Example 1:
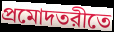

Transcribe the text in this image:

প্রমোদতরীতে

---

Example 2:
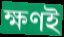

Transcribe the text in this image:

ক্ষণই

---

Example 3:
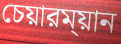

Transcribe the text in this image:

চেয়ারম্য়ান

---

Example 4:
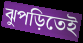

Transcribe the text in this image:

ঝুপড়িতেই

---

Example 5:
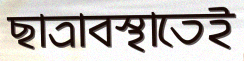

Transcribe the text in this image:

ছাত্রাবস্থাতেই